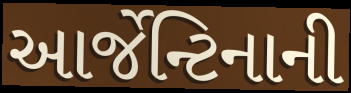
આર્જેન્ટિનાની